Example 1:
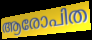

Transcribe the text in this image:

ആരോപിത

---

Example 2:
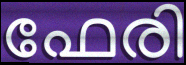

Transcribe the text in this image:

ഫേരി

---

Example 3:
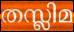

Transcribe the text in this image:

തസ്ലിമ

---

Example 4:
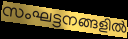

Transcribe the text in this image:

സംഘട്ടനങ്ങളിൽ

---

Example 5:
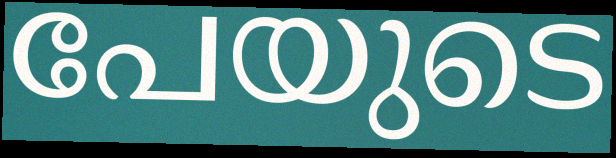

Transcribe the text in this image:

പേയുടെ